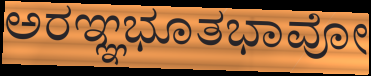
ಅರಞ್ಞಭೂತಭಾವೋ